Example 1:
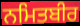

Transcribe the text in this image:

ਨਮਿਤਬੀਰ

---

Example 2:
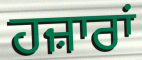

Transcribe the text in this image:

ਹਜ਼ਾਰਾਂ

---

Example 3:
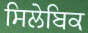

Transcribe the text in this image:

ਸਿਲੇਬਿਕ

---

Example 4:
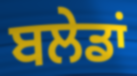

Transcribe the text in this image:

ਬਲੇਡਾਂ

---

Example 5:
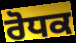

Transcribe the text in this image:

ਰੋਧਕ